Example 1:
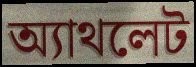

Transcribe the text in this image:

অ্যাথলেট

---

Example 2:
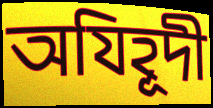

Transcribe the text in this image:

অযিহূদী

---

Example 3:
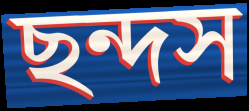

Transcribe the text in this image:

ছন্দস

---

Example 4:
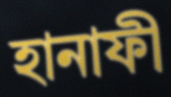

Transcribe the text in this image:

হানাফী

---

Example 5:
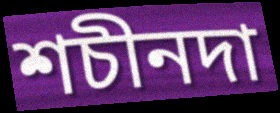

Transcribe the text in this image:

শচীনদা